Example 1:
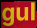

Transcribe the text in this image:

gul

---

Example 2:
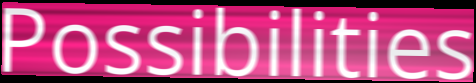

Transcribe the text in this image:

Possibilities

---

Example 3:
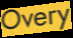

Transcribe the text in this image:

Overy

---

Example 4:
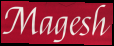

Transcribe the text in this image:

Magesh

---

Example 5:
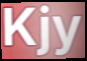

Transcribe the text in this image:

Kjy